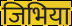
जिभिया